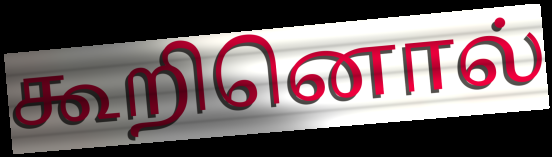
கூறினொல்